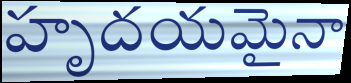
హృదయమైనా